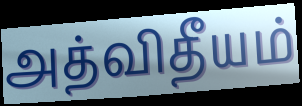
அத்விதீயம்